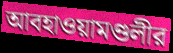
আবহাওয়ামণ্ডলীর